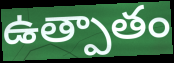
ఉత్పాతం